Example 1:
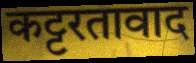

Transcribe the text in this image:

कट्टरतावाद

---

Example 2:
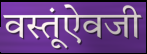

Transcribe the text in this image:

वस्तूंऐवजी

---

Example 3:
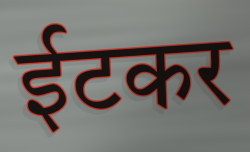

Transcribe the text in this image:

ईटकर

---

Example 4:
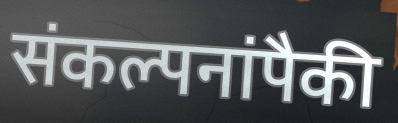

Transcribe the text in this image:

संकल्पनांपैकी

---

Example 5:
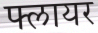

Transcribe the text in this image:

फ्लायर